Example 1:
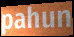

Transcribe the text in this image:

pahun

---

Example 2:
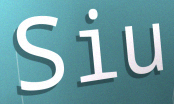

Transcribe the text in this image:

Siu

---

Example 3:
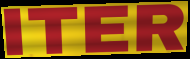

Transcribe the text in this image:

ITER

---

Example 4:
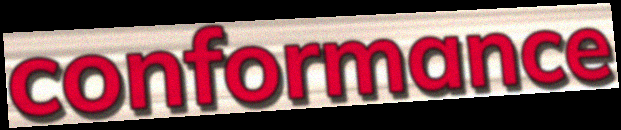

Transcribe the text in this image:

conformance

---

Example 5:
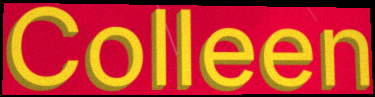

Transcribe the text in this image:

Colleen